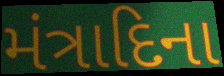
મંત્રાદિના